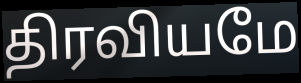
திரவியமே